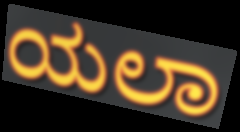
ಯಲಾ